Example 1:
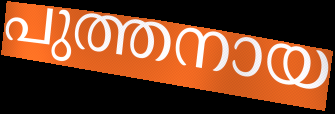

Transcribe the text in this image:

പുത്തനായ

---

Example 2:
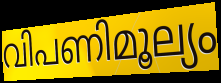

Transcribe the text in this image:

വിപണിമൂല്യം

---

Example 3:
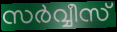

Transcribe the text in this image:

സർവ്വീസ്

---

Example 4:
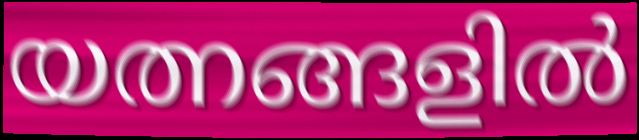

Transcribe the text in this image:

യത്നങ്ങളിൽ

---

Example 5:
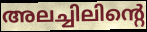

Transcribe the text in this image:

അലച്ചിലിന്റെ